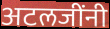
अटलजींनी